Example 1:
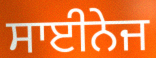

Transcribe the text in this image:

ਸਾਈਨੇਜ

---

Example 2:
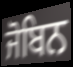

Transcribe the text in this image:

ਜੋਬਿਨ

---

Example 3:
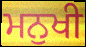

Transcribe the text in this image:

ਮਨੁਖੀ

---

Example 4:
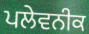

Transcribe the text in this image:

ਪਲੇਵਨੀਕ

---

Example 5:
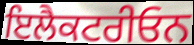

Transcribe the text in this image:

ਇਲੈਕਟਰੀਓਨ